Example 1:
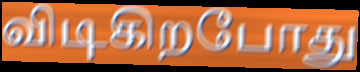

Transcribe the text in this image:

விடிகிறபோது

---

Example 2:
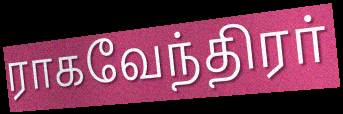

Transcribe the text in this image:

ராகவேந்திரர்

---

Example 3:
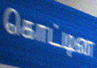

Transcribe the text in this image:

கொட்டின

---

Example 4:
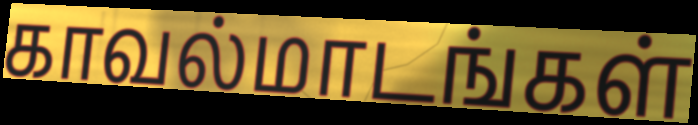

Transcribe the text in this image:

காவல்மாடங்கள்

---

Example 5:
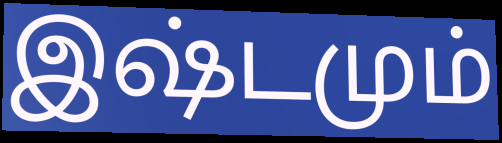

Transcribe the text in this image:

இஷ்டமும்